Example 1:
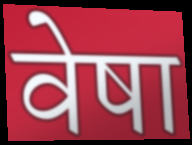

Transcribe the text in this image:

वेषा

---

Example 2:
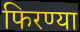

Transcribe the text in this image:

फिरण्या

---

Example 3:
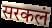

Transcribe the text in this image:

सरकलं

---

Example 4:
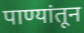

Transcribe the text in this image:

पाण्यांतून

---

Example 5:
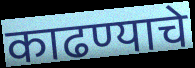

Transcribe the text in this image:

काढण्याचे